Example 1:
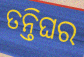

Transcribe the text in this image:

ତନ୍ତିଘର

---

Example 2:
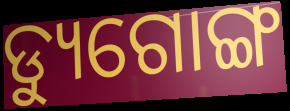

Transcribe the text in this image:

ଡ୍ୟୁଗୋଙ୍ଗ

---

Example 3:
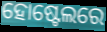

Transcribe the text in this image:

ହୋଷ୍ଟେଲରେ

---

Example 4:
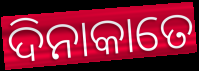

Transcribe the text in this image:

ଦିନାକାତେ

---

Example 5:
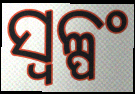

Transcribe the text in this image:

ସ୍ୱଳ୍ପଂ